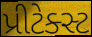
પ્રીટેક્સ્ટ